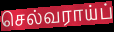
செல்வராய்ப்